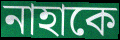
নাহাকে